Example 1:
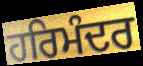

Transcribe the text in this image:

ਹਰਿਮੰਦਰ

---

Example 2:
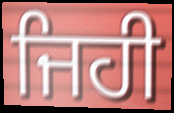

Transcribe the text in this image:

ਜਿਹੀ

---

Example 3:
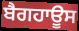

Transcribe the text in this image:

ਬੈਗਹਾਊਸ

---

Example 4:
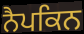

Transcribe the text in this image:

ਨੈਪਕਿਨ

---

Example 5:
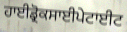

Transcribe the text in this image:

ਹਾਈਡ੍ਰੋਕਸਾਈਪੇਟਾਈਟ